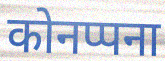
कोनप्पना